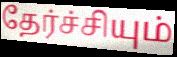
தேர்ச்சியும்